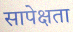
सापेक्षता